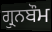
ਗ੍ਰੁਨਬੌਮ